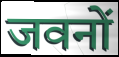
जवनों